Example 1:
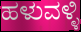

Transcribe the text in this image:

ಹಳುವಳ್ಳಿ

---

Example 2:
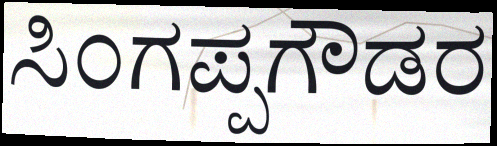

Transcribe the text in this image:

ಸಿಂಗಪ್ಪಗೌಡರ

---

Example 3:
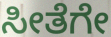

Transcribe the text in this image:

ಸೀತೆಗೇ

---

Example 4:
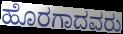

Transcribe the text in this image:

ಹೊರಗಾದವರು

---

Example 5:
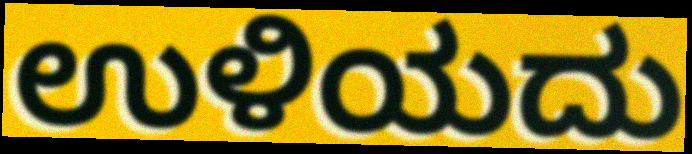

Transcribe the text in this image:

ಉಳಿಯದು